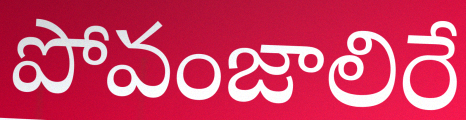
పోవంజాలిరే